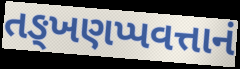
તઙ્ખણપ્પવત્તાનં